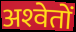
अश्‍वेतों